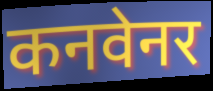
कनवेनर